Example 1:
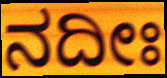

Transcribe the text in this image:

ನದೀಃ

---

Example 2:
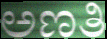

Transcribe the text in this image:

ಅಣತಿ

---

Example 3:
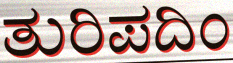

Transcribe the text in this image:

ತುರಿಪದಿಂ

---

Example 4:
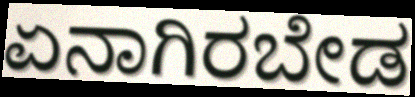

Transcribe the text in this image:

ಏನಾಗಿರಬೇಡ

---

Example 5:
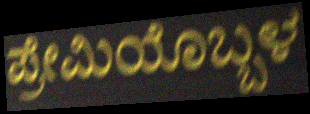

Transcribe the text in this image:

ಪ್ರೇಮಿಯೊಬ್ಬಳ